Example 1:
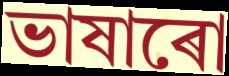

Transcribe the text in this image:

ভাষাৰো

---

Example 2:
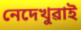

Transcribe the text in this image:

নেদেখুৱাই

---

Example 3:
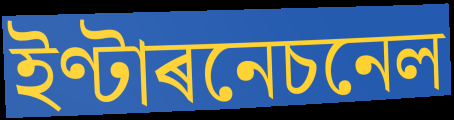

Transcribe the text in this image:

ইণ্টাৰনেচনেল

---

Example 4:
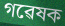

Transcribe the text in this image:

গৱেষক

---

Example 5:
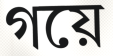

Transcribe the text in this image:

গয়ে